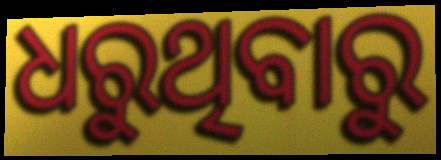
ଧରୁଥିବାରୁ